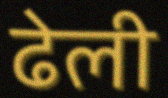
ढेली